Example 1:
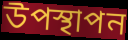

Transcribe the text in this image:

উপস্থাপন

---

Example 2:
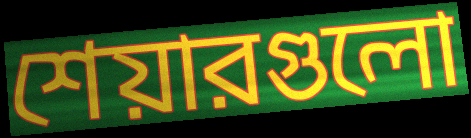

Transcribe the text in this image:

শেয়ারগুলো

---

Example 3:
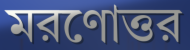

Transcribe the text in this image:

মরণোত্তর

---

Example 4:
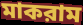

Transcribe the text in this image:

মাকরাম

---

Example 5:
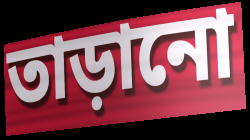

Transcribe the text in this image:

তাড়ানো